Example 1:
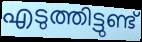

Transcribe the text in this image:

എടുത്തിട്ടുണ്ട്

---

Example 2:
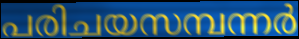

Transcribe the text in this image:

പരിചയസമ്പന്നർ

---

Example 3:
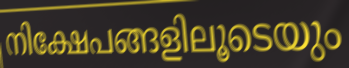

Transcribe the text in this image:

നിക്ഷേപങ്ങളിലൂടെയും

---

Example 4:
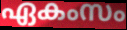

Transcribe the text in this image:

ഏകംസം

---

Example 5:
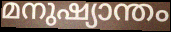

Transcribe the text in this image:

മനുഷ്യാന്തം